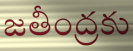
జతీంద్రకు